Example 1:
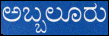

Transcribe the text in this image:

ಅಬ್ಬಲೂರು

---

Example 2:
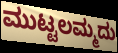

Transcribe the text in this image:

ಮುಟ್ಟಲಮ್ಮದು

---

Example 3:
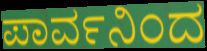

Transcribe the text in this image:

ಪಾರ್ವನಿಂದ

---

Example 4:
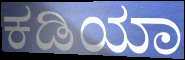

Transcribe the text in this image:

ಕಡಿಯಾ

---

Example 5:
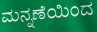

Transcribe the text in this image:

ಮನ್ನಣೆಯಿಂದ